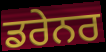
ਡਰੇਨਰ